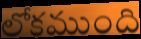
లోకముంది